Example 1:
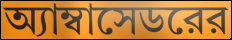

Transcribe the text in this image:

অ্যাম্বাসেডরের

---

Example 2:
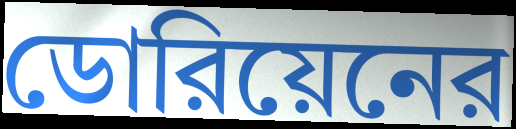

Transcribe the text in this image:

ডোরিয়েনের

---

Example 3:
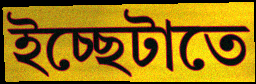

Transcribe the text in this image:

ইচ্ছেটাতে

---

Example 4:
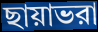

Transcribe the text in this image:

ছায়াভরা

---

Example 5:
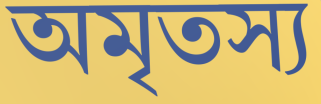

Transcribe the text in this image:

অমৃতস্য